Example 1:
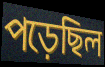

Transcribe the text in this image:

পড়েছিল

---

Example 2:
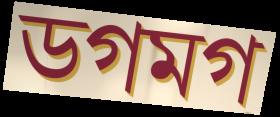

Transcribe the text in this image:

ডগমগ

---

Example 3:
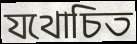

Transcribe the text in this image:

যথোচিত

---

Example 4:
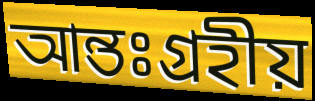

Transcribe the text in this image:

আন্তঃগ্রহীয়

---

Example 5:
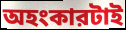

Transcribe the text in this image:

অহংকারটাই